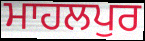
ਮਾਹਲਪੁਰ